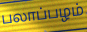
பலாப்பழம்